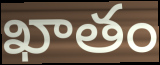
ఖాతం